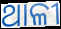
ଥାଳୀ